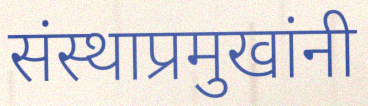
संस्थाप्रमुखांनी